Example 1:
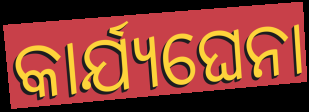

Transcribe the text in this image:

କାର୍ଯ୍ୟଘେନା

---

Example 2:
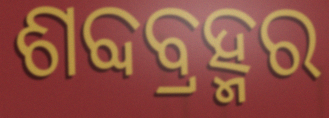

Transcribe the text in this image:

ଶବ୍ଦବ୍ରହ୍ମର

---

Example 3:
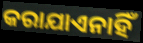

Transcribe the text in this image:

କରାଯାଏନାହିଁ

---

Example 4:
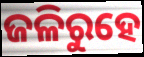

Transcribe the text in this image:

ଜଳିରୁହେ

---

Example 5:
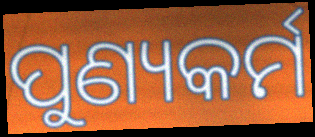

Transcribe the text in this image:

ପୁଣ୍ୟକର୍ମ